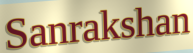
Sanrakshan